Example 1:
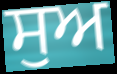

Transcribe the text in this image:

ਸੁਅ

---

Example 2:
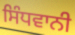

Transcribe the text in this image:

ਸਿੰਧਵਾਨੀ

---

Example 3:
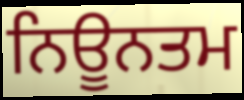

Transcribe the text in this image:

ਨਿਊਨਤਮ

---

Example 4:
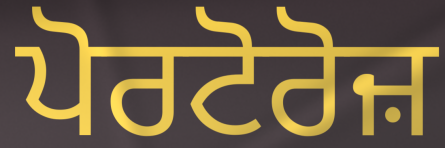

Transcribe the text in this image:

ਪੋਰਟੋਰੋਜ਼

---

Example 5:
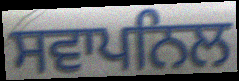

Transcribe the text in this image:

ਸਵਾਪਨਿਲ